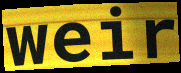
weir